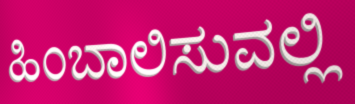
ಹಿಂಬಾಲಿಸುವಲ್ಲಿ